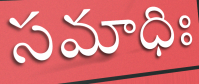
సమాధిః